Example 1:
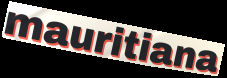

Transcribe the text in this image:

mauritiana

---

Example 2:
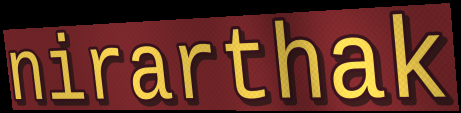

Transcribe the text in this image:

nirarthak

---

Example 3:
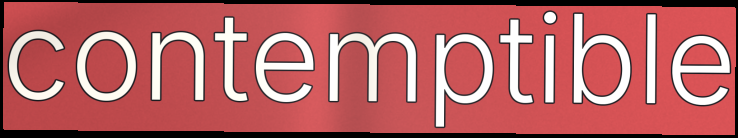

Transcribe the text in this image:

contemptible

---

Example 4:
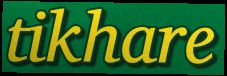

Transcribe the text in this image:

tikhare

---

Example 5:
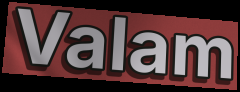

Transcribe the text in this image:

Valam